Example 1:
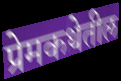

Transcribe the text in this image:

प्रेमकथेतील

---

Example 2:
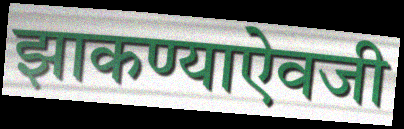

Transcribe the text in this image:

झाकण्याऐवजी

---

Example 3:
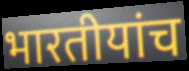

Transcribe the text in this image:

भारतीयांच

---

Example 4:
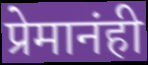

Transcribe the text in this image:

प्रेमानंही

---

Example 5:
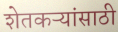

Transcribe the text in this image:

शेतकऱ्यांसाठी